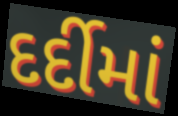
દર્દીમાં